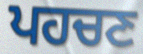
ਪਹਚਣ